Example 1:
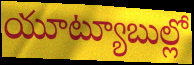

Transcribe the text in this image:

యూట్యూబుల్లో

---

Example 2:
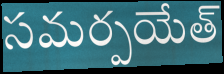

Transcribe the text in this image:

సమర్పయేత్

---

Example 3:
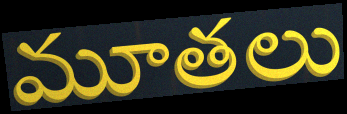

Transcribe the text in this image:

మూతలు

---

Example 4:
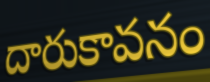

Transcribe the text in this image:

దారుకావనం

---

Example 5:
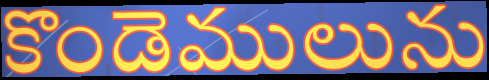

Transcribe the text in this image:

కొండెములును